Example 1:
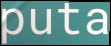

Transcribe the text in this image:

puta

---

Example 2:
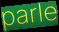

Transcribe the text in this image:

parle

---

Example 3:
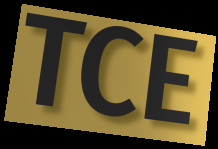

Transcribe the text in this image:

TCE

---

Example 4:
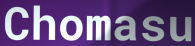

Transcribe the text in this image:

Chomasu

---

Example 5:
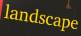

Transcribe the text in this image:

landscape